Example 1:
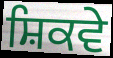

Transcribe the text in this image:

ਸ਼ਿਕਵੇ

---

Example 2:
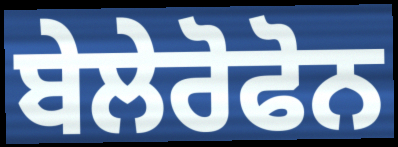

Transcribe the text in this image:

ਬੇਲੇਰੋਫੋਨ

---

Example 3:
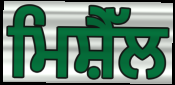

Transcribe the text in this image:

ਮਿਸ਼ੈੱਲ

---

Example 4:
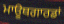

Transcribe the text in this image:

ਮਾਊਥਗਾਰਡਾਂ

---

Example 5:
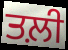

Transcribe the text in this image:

ਤਲ਼ੀ